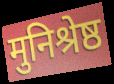
मुनिश्रेष्ठ